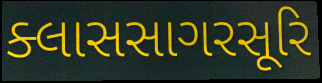
ક્લાસસાગરસૂરિ